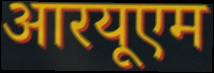
आरयूएम